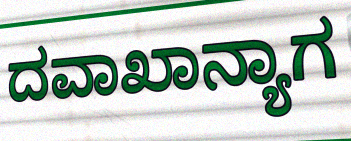
ದವಾಖಾನ್ಯಾಗ